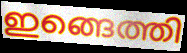
ഇങ്ങെത്തി